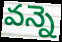
వన్నె